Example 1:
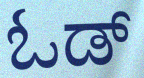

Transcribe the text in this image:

ಓಡ್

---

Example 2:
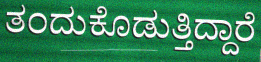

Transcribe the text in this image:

ತಂದುಕೊಡುತ್ತಿದ್ದಾರೆ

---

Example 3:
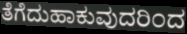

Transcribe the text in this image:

ತೆಗೆದುಹಾಕುವುದರಿಂದ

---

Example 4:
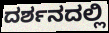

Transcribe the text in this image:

ದರ್ಶನದಲ್ಲಿ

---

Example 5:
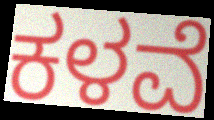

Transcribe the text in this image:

ಕಳವೆ